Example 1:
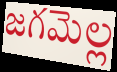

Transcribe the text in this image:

జగమెల్ల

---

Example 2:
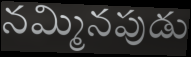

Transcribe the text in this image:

నమ్మినపుడు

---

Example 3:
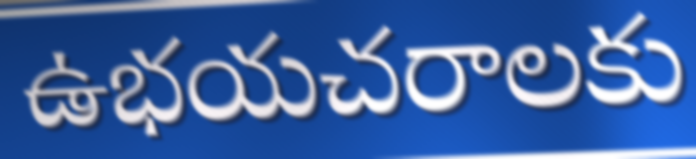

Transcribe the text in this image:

ఉభయచరాలకు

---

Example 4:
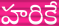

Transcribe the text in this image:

హరికే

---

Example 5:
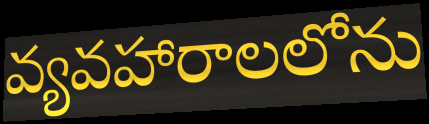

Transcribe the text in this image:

వ్యవహారాలలోను